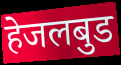
हेजलबुड